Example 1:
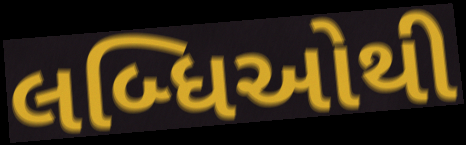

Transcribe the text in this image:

લબ્ધિઓથી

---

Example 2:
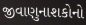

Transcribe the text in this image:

જીવાણુનાશકોનો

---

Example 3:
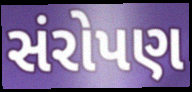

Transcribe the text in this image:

સંરોપણ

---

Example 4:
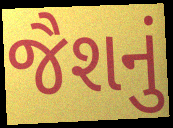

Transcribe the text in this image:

જૈશનું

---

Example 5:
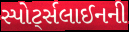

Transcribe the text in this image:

સ્પોર્ટ્સલાઈનની